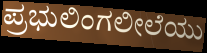
ಪ್ರಭುಲಿಂಗಲೀಲೆಯು